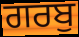
ਗਰਬੁ